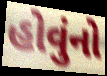
હોવુંનો